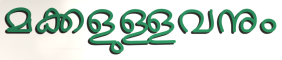
മക്കളുള്ളവനും